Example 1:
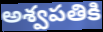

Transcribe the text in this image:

అశ్వపతికి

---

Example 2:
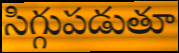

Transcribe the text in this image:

సిగ్గుపడుతూ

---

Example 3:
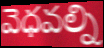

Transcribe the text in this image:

వెధవల్ని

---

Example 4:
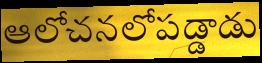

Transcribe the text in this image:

ఆలోచనలోపడ్డాడు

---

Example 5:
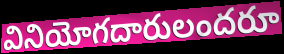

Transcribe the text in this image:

వినియోగదారులందరూ